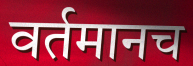
वर्तमानच